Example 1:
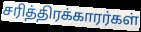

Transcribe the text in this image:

சரித்திரக்காரர்கள்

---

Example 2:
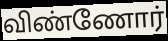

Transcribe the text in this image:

விண்ணோர்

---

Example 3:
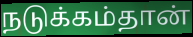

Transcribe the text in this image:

நடுக்கம்தான்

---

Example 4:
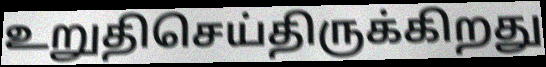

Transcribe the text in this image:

உறுதிசெய்திருக்கிறது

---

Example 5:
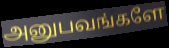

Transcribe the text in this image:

அனுபவங்களே